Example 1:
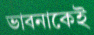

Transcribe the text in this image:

ভাবনাকেই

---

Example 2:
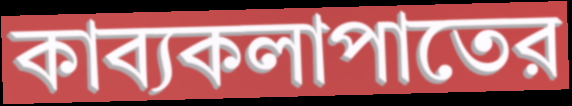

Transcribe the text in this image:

কাব্যকলাপাতের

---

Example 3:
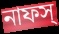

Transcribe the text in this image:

নাফস্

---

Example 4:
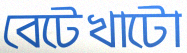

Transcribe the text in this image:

বেটেখাটো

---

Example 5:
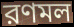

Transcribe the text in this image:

রণমল